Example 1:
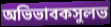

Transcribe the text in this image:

অভিভাবকসুলভ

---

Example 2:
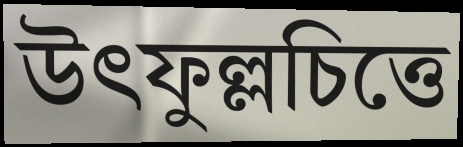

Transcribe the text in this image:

উৎফুল্লচিত্তে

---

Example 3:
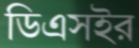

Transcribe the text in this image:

ডিএসইর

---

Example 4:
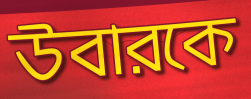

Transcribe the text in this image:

উবারকে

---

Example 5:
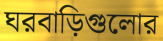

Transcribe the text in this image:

ঘরবাড়িগুলোর